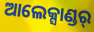
ଆଲେକ୍ସାଣ୍ଡର୍